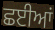
ਛਈਆਂ